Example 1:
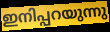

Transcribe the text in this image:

ഇനിപ്പറയുന്നു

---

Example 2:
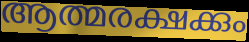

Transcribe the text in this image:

ആത്മരക്ഷക്കും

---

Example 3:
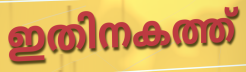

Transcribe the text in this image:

ഇതിനകത്ത്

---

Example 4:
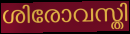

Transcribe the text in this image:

ശിരോവസ്തി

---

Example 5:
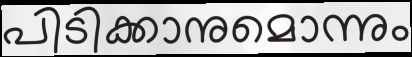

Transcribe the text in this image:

പിടിക്കാനുമൊന്നും